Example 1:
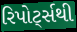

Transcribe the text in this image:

રિપોર્ટ્સથી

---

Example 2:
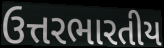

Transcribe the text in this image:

ઉત્તરભારતીય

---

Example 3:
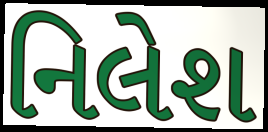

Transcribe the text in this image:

નિલેશ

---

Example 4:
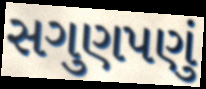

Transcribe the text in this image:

સગુણપણું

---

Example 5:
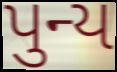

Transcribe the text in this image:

પુન્ય